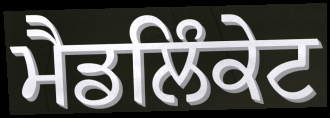
ਮੈਡਲਿੰਕੇਟ